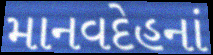
માનવદેહનાં